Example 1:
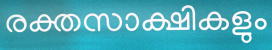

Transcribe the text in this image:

രക്തസാക്ഷികളും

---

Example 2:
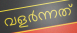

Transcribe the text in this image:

വളർന്നത്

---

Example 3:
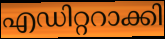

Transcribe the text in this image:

എഡിറ്ററാക്കി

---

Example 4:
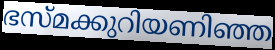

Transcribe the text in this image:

ഭസ്മക്കുറിയണിഞ്ഞ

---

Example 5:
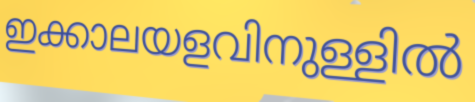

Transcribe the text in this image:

ഇക്കാലയളവിനുള്ളിൽ